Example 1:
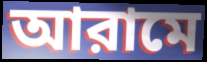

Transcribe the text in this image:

আরামে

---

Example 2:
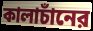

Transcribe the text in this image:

কালাচাঁনের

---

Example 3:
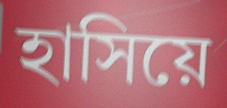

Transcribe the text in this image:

হাসিয়ে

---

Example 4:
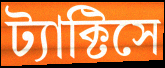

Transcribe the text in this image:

ট্যাক্টিসে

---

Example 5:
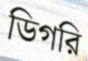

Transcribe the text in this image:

ডিগরি